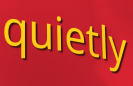
quietly